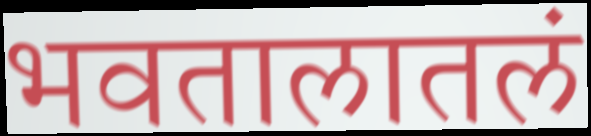
भवतालातलं